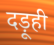
दड़ूही